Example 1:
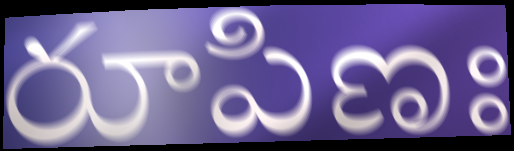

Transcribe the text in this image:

రూపిణః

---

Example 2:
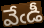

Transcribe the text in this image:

వేఁడీ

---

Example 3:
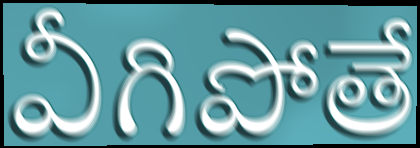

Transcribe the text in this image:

వీగిపోతే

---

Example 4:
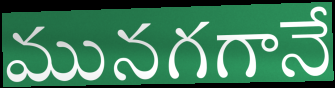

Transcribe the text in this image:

మునగగానే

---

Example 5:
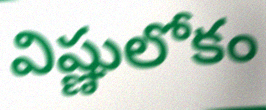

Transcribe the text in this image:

విష్ణులోకం